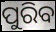
ପୁରିବ